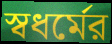
স্বধর্মের